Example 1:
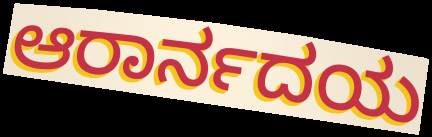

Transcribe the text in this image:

ಆರಾರ್ನದಯ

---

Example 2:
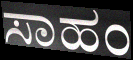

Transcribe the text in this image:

ಸಾಹಂ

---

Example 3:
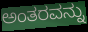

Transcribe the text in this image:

ಅಂತರವನ್ನು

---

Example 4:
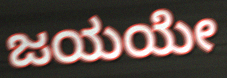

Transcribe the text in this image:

ಜಯಯೇ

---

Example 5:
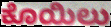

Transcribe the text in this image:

ಕೊಯಿಲು